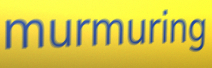
murmuring